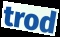
trod